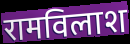
रामविलाश